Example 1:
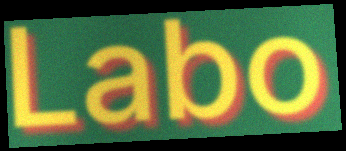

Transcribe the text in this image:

Labo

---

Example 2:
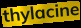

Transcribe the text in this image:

thylacine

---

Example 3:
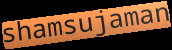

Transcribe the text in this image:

shamsujaman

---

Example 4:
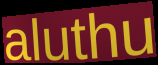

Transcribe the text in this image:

aluthu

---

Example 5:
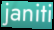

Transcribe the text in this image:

janiti